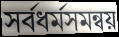
সর্বধর্মসমন্বয়